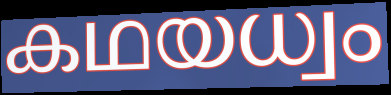
കഥയധ്വം